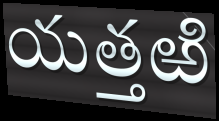
యత్తఱి